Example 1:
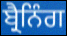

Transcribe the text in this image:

ਬ੍ਰੈਨਿੰਗ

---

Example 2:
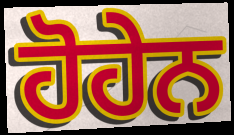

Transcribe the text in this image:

ਹੋਹੇਨ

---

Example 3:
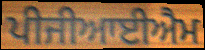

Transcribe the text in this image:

ਪੀਜੀਆਈਐਮ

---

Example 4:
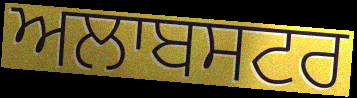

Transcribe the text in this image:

ਅਲਾਬਸਟਰ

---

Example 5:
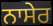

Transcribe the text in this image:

ਨਾਸੇਰ